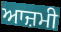
ਆਜ਼ਮੀ